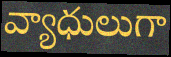
వ్యాధులుగా